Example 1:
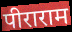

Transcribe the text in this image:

पीराराम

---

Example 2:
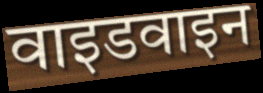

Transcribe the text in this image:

वाइडवाइन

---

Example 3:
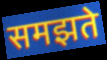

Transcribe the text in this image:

समझते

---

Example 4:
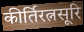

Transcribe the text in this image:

कीर्तिरत्नसूरि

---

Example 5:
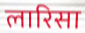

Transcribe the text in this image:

लारिसा